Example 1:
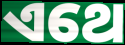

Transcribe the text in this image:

ଏଥେ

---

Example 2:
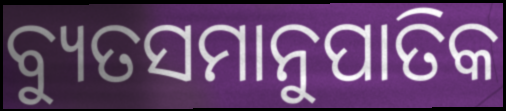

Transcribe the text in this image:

ବ୍ୟୁତସମାନୁପାତିକ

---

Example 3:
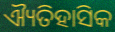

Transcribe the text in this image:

ଐ୍ୟତିହାସିକ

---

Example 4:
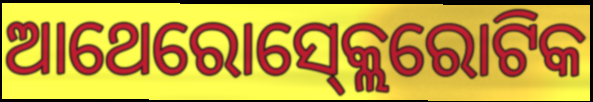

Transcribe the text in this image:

ଆଥେରୋସ୍କ୍ଲେରୋଟିକ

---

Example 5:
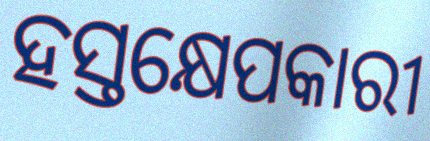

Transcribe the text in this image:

ହସ୍ତକ୍ଷେପକାରୀ